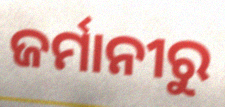
ଜର୍ମାନୀରୁ